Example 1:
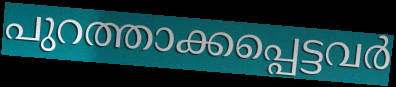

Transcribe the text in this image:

പുറത്താക്കപ്പെട്ടവർ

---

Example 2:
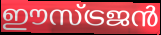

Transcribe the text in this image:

ഈസ്ട്രജൻ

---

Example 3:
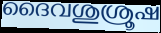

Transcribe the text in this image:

ദൈവശുശ്രൂഷ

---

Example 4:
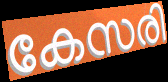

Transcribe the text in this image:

കേസരി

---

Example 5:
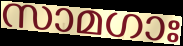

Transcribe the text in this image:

സാമഗാഃ